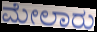
ಮೇಲಾರು